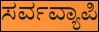
ಸರ್ವವ್ಯಾಪಿ